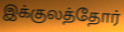
இக்குலத்தோர்